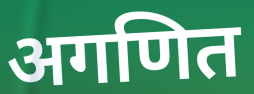
अगणित